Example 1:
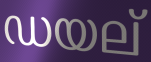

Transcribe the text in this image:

ഡയല്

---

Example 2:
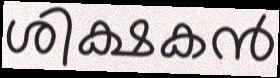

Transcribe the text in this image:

ശിക്ഷകൻ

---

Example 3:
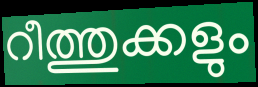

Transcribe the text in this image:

റീത്തുക്കളും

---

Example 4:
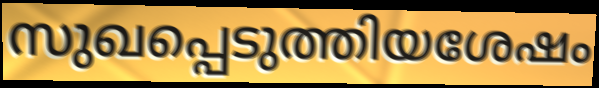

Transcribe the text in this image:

സുഖപ്പെടുത്തിയശേഷം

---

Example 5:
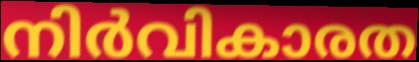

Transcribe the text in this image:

നിർവികാരത